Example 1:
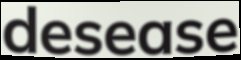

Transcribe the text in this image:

desease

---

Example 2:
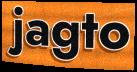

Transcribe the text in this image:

jagto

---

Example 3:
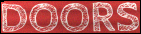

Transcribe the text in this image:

DOORS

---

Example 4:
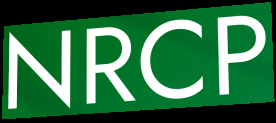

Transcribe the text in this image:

NRCP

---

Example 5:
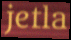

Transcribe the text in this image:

jetla